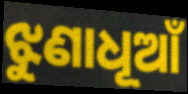
ଝୁଣାଧୂଆଁ